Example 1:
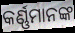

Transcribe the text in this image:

କର୍ଣ୍ଣମାନଙ୍କ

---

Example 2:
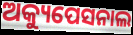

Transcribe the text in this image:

ଅକ୍ୟୁପେସନାଲ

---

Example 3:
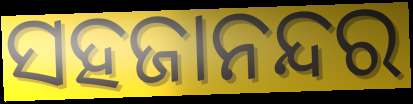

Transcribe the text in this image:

ସହଜାନନ୍ଦର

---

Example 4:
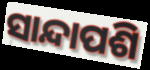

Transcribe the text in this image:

ସାନ୍ଦାପଶି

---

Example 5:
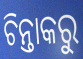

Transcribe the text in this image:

ଚିନ୍ତାକରୁ